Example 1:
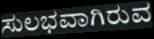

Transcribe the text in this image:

ಸುಲಭವಾಗಿರುವ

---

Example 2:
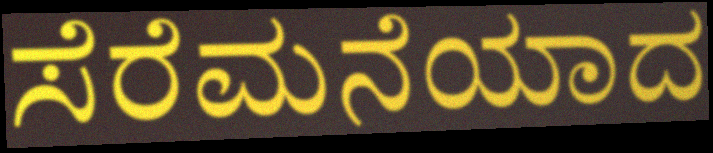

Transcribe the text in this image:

ಸೆರೆಮನೆಯಾದ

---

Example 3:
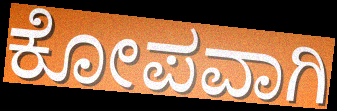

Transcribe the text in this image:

ಕೋಪವಾಗಿ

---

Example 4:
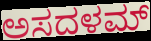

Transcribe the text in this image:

ಅಸದಳಮ್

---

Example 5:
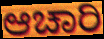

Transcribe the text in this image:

ಆಚಾರಿ